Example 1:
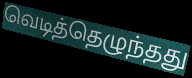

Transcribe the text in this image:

வெடித்தெழுந்தது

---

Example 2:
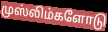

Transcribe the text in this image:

முஸ்லிம்களோடு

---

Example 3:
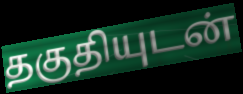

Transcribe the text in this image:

தகுதியுடன்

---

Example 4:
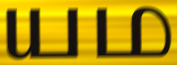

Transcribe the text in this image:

யம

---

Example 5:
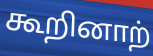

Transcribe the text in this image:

கூறினாற்